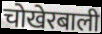
चोखेरबाली